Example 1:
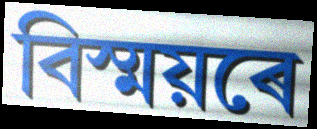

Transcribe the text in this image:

বিস্ময়ৰে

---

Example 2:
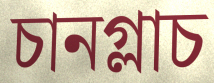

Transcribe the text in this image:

চানগ্লাচ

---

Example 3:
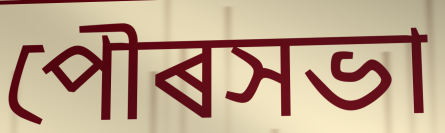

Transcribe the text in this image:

পৌৰসভা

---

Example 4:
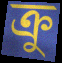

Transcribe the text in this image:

ক্ৰু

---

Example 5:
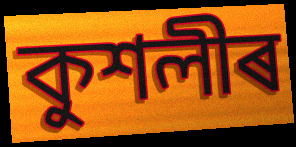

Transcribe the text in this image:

কুশলীৰ